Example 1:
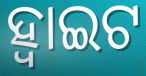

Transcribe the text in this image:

ହ୍ବାଇଟ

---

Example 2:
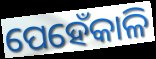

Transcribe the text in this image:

ପେହେଁକାଳି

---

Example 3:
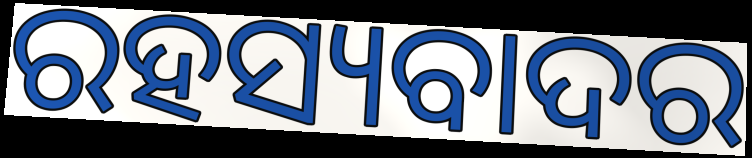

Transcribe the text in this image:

ରହସ୍ୟବାଦର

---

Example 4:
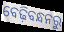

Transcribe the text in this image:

ବେଢ଼ିବନ୍ଧନରୁ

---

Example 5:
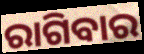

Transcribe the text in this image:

ରାଗିବାର